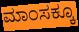
ಮಾಂಸಕ್ಕೂ